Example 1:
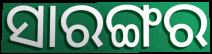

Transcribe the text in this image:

ସାରଙ୍ଗର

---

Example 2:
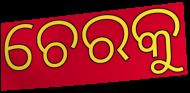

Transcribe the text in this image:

ଚେରକୁ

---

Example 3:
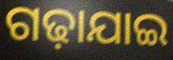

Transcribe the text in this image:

ଗଢ଼ାଯାଇ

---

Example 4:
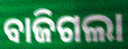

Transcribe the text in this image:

ବାଜିଗଲା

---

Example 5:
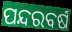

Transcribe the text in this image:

ପନ୍ଦରବର୍ଷ